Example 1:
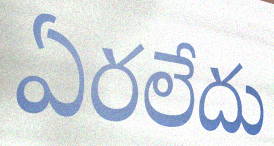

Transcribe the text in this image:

ఏరలేదు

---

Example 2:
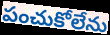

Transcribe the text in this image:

పంచుకోలేను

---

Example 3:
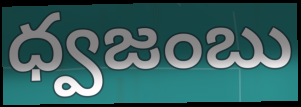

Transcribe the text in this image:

ధ్వజంబు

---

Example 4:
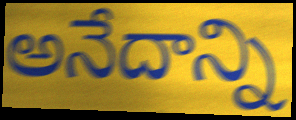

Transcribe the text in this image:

అనేదాన్ని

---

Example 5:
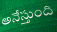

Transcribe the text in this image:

అనేస్తుంది